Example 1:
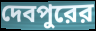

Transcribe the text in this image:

দেবপুরের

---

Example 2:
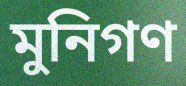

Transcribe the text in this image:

মুনিগণ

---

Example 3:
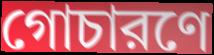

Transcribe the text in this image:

গোচারণে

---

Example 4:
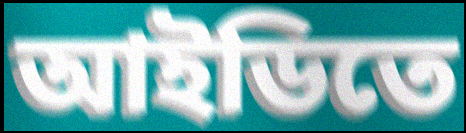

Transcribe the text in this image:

আইডিতে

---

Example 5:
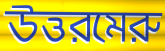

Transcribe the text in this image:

উত্তরমেরু